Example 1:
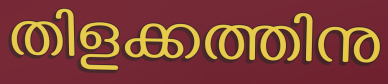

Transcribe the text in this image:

തിളക്കത്തിനു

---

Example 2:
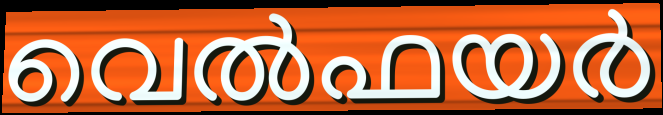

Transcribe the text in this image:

വെൽഫയർ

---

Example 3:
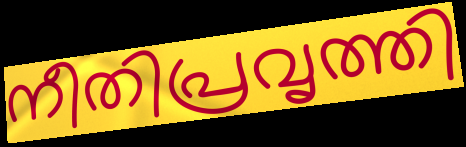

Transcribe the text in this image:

നീതിപ്രവൃത്തി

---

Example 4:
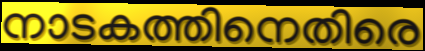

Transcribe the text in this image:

നാടകത്തിനെതിരെ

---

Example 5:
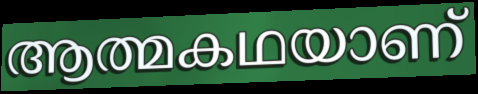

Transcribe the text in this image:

ആത്മകഥയാണ്